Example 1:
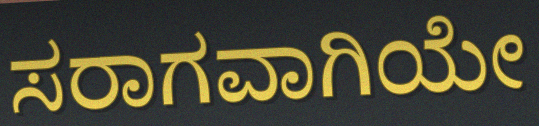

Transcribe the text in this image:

ಸರಾಗವಾಗಿಯೇ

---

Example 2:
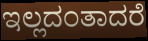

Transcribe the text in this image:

ಇಲ್ಲದಂತಾದರೆ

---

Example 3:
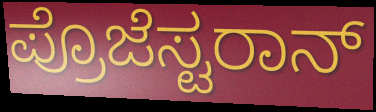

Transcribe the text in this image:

ಪ್ರೊಜೆಸ್ಟರಾನ್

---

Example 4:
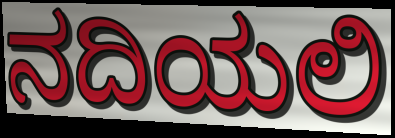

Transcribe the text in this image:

ನದಿಯಲಿ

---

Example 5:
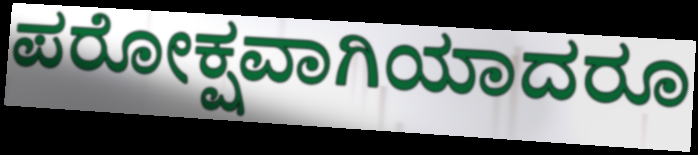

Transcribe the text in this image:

ಪರೋಕ್ಷವಾಗಿಯಾದರೂ